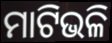
ମାଟିଭଳି